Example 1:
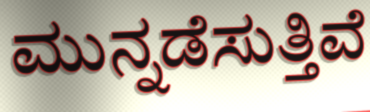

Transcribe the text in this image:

ಮುನ್ನಡೆಸುತ್ತಿವೆ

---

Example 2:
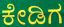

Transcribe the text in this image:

ಕೇಡಿಗ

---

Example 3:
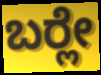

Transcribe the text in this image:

ಬರ್‍ಲೇ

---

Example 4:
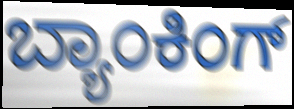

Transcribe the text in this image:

ಬ್ಯಾಂಕಿಂಗ್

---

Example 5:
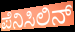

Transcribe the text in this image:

ಪೆನಿಸಿಲಿನ್